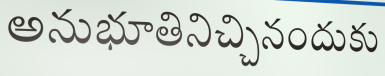
అనుభూతినిచ్చినందుకు